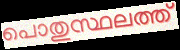
പൊതുസ്ഥലത്ത്